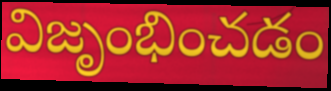
విజృంభించడం